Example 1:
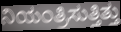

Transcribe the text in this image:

ನಿಯಂತ್ರಿಸುತ್ತಿತ್ತು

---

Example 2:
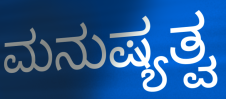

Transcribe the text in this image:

ಮನುಷ್ಯತ್ವ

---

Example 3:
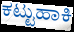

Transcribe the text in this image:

ಕಟ್ಟುಹಾಕಿ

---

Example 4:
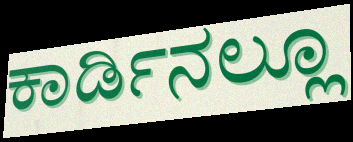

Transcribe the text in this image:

ಕಾರ್ಡಿನಲ್ಲೂ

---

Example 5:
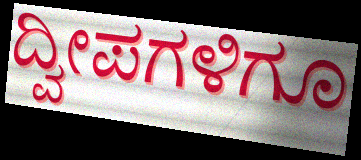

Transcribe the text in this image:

ದ್ವೀಪಗಳಿಗೂ